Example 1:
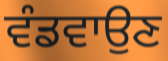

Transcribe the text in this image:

ਵੰਡਵਾਉਣ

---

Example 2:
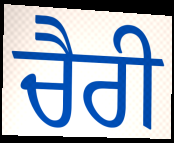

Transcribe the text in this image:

ਚੈਰੀ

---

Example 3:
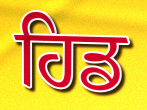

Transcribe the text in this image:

ਹਿਡ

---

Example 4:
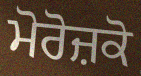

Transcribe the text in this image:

ਮੋਰੋਜ਼ਕੋ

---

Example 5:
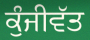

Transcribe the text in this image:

ਕੁੰਜੀਵੱਤ